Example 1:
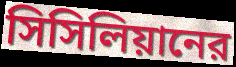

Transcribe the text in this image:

সিসিলিয়ানের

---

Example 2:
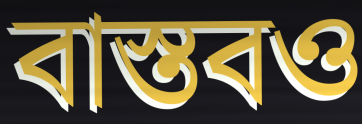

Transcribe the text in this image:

বাস্তবও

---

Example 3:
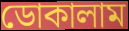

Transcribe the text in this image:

ডোকালাম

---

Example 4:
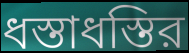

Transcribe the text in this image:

ধস্তাধস্তির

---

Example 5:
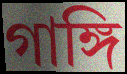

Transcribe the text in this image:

গাঙ্গি